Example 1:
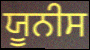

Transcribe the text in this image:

ਯੂਨੀਸ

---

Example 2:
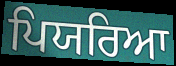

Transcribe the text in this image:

ਪਿਯਰਿਆ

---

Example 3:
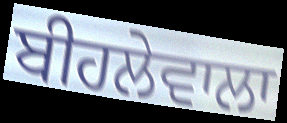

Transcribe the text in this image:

ਬੀਹਲੇਵਾਲਾ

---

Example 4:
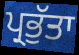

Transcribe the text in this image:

ਪ੍ਰਭੁੱਤਾ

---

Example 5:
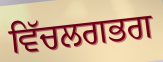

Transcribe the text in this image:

ਵਿੱਚਲਗਭਗ